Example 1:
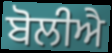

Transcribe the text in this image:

ਬੋਲੀਐ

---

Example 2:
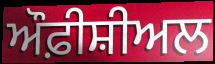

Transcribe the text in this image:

ਔਫ਼ੀਸ਼ੀਅਲ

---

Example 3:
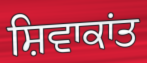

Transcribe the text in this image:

ਸ਼ਿਵਾਕਾਂਤ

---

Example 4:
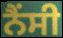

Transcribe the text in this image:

ਨੈਂਸੀ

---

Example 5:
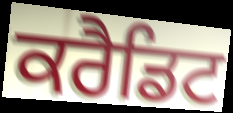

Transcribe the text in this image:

ਕਰੈਡਿਟ